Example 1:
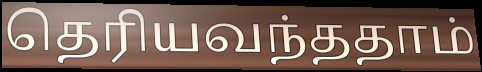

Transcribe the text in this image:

தெரியவந்ததாம்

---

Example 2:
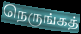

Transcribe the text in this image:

நெருங்கத்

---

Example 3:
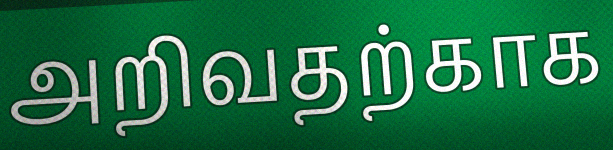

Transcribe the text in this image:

அறிவதற்காக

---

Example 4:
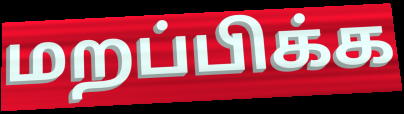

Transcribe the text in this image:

மறப்பிக்க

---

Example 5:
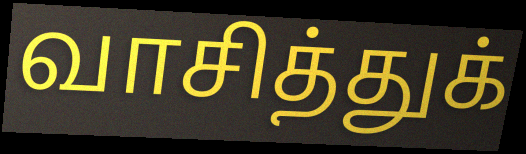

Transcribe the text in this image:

வாசித்துக்